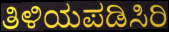
ತಿಳಿಯಪಡಿಸಿರಿ